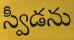
స్వీడను